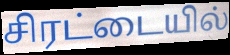
சிரட்டையில்